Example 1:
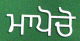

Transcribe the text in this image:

ਮਾਪੋਚੋ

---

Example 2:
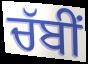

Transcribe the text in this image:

ਚੱਬੀਂ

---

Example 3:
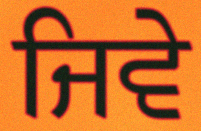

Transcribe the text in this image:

ਜਿਵੇ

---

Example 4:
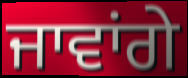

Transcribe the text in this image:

ਜਾਵਾਂਗੇ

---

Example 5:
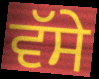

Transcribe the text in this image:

ਵੱਸੇ